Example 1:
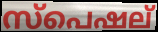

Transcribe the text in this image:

സ്പെഷല്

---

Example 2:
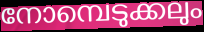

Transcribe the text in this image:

നോമ്പെടുക്കലും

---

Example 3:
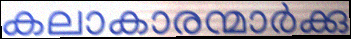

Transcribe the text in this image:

കലാകാരന്മാർക്കു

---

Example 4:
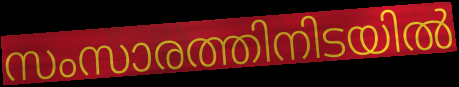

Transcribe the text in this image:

സംസാരത്തിനിടയിൽ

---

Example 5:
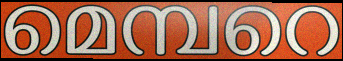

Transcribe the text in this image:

മെമ്പറെ